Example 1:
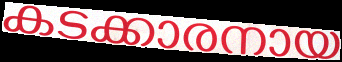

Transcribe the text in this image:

കടക്കാരനായ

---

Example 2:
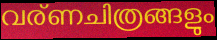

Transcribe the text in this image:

വര്ണചിത്രങ്ങളും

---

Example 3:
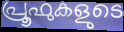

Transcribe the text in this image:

പ്രൂഫുകളുടെ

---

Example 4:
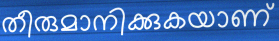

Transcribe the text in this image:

തീരുമാനിക്കുകയാണ്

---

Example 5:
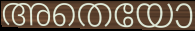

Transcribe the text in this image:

അതെയോ